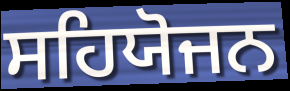
ਸਹਿਯੋਜਨ